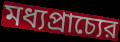
মধ্যপ্রাচ্যের